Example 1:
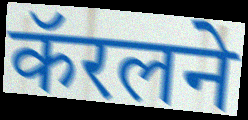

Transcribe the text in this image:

कॅरलने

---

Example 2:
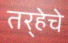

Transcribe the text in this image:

तर्‍हेचे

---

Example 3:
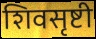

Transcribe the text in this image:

शिवसृष्टी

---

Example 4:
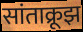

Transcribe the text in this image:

सांताक्रूझ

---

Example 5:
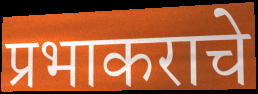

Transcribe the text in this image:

प्रभाकराचे